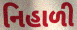
નિહાળી